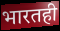
भारतही